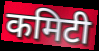
कमिटी